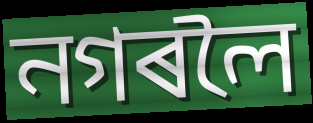
নগৰলৈ